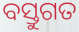
ବସ୍ତୁଗତ